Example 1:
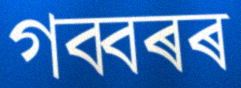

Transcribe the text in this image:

গব্বৰৰ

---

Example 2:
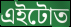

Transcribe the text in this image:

এইটোত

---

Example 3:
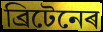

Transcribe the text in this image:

ব্ৰিটেনেৰ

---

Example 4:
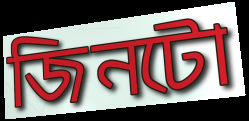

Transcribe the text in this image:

জিনটো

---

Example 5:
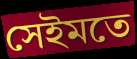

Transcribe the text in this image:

সেইমতে